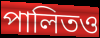
পালিতও